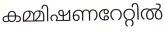
കമ്മിഷണറേറ്റിൽ